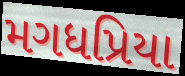
મગધપ્રિયા